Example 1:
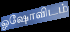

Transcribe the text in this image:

ஓஷோவிடம்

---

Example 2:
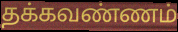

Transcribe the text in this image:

தக்கவண்ணம்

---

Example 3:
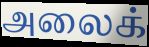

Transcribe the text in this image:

அலைக்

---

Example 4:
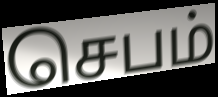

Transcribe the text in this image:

செபம்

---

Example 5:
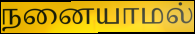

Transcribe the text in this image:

நனையாமல்